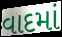
વાદમાં